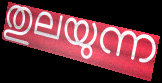
തുലയുന്ന